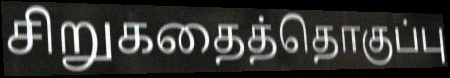
சிறுகதைத்தொகுப்பு